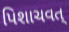
પિશાચવત્